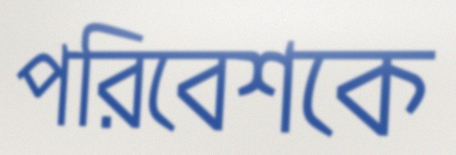
পরিবেশকে